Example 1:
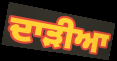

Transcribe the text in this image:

ਦਾੜੀਆ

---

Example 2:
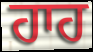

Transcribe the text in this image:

ਹਾਹ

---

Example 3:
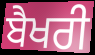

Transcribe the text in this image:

ਬੈਖਰੀ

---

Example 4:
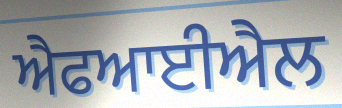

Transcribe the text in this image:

ਐਫਆਈਐਲ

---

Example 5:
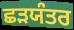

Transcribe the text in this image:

ਛੜਯੰਤਰ